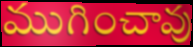
ముగించావు